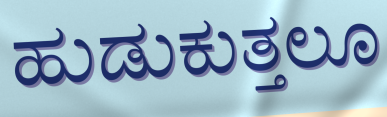
ಹುಡುಕುತ್ತಲೂ